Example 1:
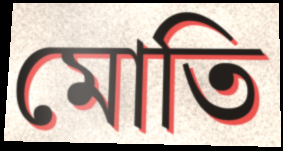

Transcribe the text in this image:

মোতি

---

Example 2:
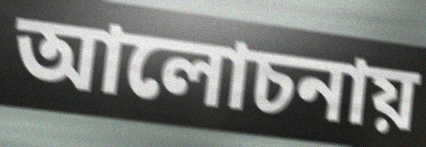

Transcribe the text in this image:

আলোচনায়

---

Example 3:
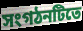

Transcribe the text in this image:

সংগঠনটিতে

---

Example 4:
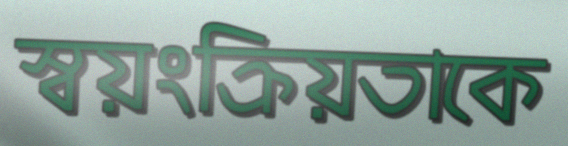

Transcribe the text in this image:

স্বয়ংক্রিয়তাকে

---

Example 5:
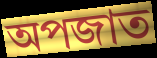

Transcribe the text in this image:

অপজাত